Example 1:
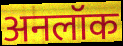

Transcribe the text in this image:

अनलॉक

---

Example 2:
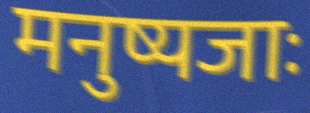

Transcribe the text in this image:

मनुष्यजाः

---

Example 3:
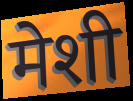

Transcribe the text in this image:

मेशी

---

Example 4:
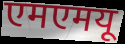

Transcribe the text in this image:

एमएमयू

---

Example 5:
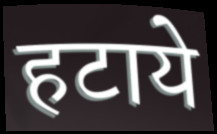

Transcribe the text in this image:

हटाये